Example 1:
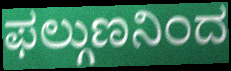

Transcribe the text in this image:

ಫಲ್ಗುಣನಿಂದ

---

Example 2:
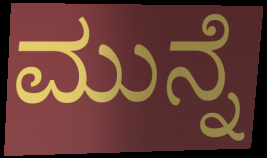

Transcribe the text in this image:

ಮುನ್ನೆ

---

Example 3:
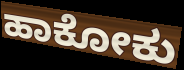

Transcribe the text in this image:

ಹಾಕೋಕು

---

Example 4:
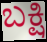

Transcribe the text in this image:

ಬಕ್ಷಿ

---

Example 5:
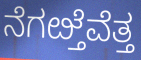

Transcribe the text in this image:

ನೆಗೞ್ತೆವೆತ್ತ